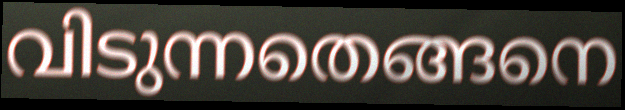
വിടുന്നതെങ്ങനെ